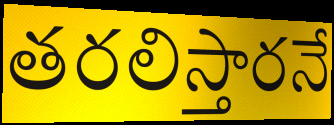
తరలిస్తారనే